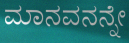
ಮಾನವನನ್ನೇ